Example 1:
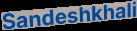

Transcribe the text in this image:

Sandeshkhali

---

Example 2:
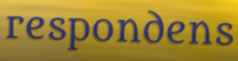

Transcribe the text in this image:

respondens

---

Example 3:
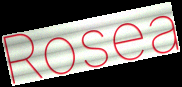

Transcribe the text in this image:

Rosea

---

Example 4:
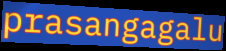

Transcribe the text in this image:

prasangagalu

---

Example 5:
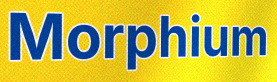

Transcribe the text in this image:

Morphium